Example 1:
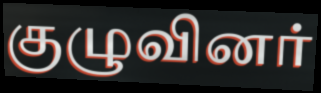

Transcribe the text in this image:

குழுவினர்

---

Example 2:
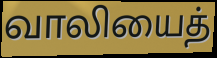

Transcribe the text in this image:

வாலியைத்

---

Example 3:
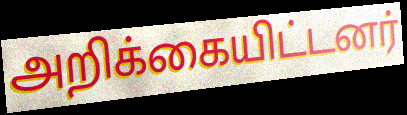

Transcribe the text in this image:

அறிக்கையிட்டனர்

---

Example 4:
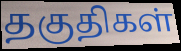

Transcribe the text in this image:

தகுதிகள்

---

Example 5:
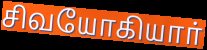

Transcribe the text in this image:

சிவயோகியார்